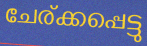
ചേര്ക്കപ്പെട്ടു